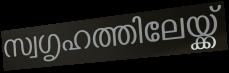
സ്വഗൃഹത്തിലേയ്ക്ക്